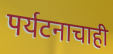
पर्यटनाचाही